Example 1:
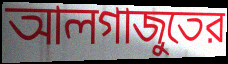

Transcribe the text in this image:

আলগাজুতের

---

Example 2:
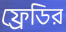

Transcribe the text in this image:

ফ্রেডির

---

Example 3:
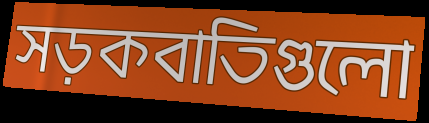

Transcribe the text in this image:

সড়কবাতিগুলো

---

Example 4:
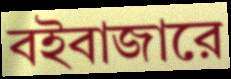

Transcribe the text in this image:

বইবাজারে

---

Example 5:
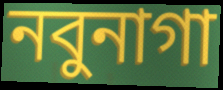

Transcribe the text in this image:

নবুনাগা